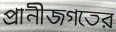
প্রানীজগতের